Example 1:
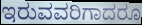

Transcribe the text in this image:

ಇರುವವರಿಗಾದರೂ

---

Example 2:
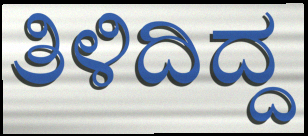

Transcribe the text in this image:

ತಿಳಿದಿದ್ದ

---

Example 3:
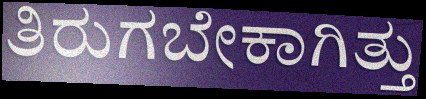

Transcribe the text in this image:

ತಿರುಗಬೇಕಾಗಿತ್ತು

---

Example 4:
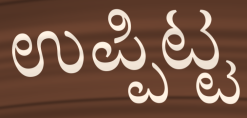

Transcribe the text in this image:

ಉಪ್ಪಿಟ್ಟ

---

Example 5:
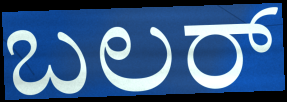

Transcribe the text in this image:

ಬಲರ್